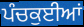
ਪੰਚਕੁਈਆਂ